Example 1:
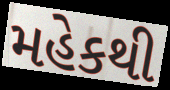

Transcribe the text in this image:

મહેકથી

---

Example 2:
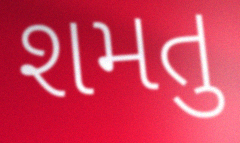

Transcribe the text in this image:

શમતુ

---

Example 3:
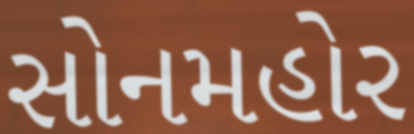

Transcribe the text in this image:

સોનમહોર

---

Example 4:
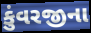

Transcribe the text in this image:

કુંવરજીના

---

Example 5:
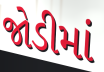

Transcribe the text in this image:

જોડીમાં